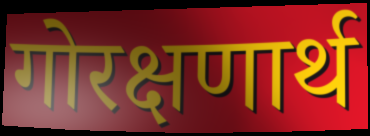
गोरक्षणार्थ